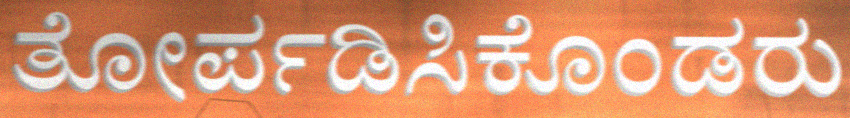
ತೋರ್ಪಡಿಸಿಕೊಂಡರು